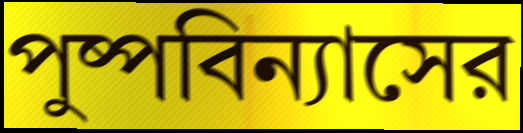
পুষ্পবিন্যাসের